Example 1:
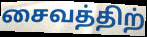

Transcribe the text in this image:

சைவத்திற்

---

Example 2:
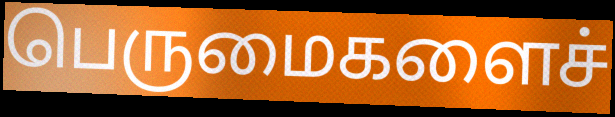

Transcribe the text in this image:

பெருமைகளைச்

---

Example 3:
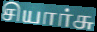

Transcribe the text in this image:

சியார்சு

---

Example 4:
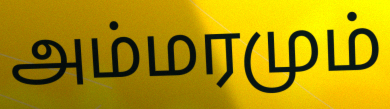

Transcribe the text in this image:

அம்மரமும்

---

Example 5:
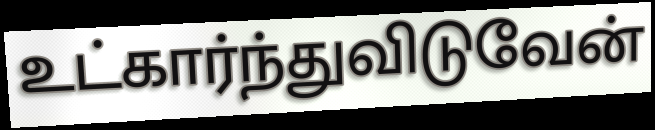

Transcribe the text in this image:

உட்கார்ந்துவிடுவேன்